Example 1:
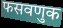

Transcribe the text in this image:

फसवणुक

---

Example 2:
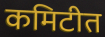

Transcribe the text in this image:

कमिटीत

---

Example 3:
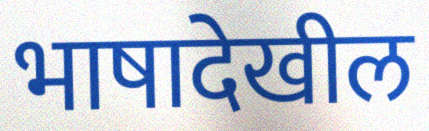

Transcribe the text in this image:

भाषादेखील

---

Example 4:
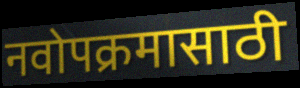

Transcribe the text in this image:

नवोपक्रमासाठी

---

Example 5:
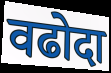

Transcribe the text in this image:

वढोदा